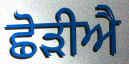
ਛੋੜੀਐ